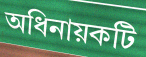
অধিনায়কটি